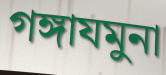
গঙ্গাযমুনা